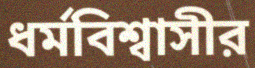
ধর্মবিশ্বাসীর